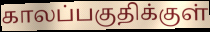
காலப்பகுதிக்குள்